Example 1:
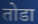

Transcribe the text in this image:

तोडा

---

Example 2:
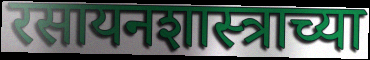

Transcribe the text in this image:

रसायनशास्त्राच्या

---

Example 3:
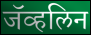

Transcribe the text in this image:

जॅव्हलिन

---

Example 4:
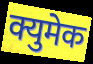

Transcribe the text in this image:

क्युमेक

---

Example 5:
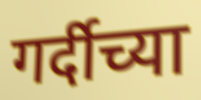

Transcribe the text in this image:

गर्दीच्या